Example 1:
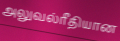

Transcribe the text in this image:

அலுவல்ரீதியான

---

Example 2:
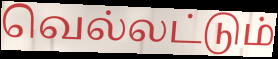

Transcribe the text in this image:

வெல்லட்டும்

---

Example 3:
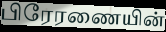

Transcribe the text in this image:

பிரேரணையின்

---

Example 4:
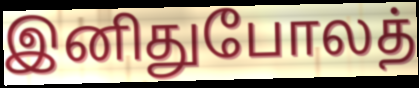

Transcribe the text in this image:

இனிதுபோலத்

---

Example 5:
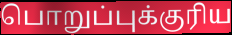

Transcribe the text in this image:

பொறுப்புக்குரிய